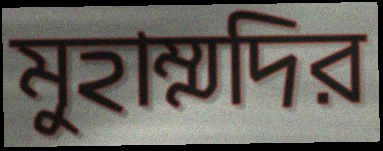
মুহাম্মদির